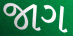
જાગ